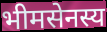
भीमसेनस्य